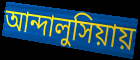
আন্দালুসিয়ায়